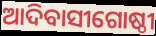
ଆଦିବାସୀଗୋଷ୍ଠୀ